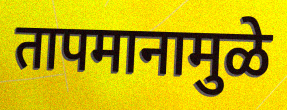
तापमानामुळे